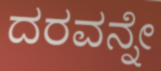
ದರವನ್ನೇ